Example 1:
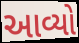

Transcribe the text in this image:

આવ્યો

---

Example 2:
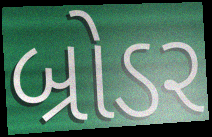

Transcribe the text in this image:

બ્રોડર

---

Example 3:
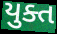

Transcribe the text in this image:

યુક્ત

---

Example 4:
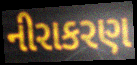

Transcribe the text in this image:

નીરાકરણ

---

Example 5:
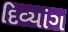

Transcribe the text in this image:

દિવ્યાંગ